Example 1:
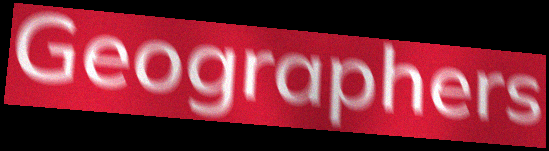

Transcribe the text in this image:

Geographers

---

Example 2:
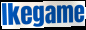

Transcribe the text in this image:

Ikegame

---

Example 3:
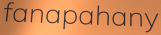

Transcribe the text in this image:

fanapahany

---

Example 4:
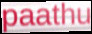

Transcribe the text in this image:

paathu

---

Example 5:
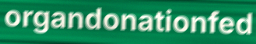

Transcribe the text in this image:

organdonationfed